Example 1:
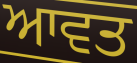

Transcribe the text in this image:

ਆਵਤ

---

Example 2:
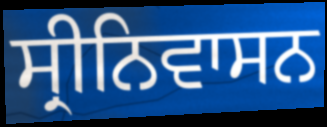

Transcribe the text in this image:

ਸ੍ਰੀਨਿਵਾਸਨ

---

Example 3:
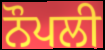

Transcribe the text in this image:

ਨੌਪਲੀ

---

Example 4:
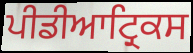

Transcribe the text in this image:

ਪੀਡੀਆਟ੍ਰਿਕਸ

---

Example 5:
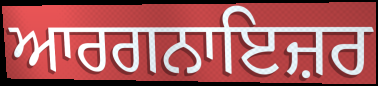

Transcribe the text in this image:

ਆਰਗਨਾਇਜ਼ਰ